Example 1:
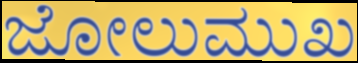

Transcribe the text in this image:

ಜೋಲುಮುಖ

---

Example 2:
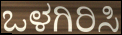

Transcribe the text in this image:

ಒಳಗಿರಿಸಿ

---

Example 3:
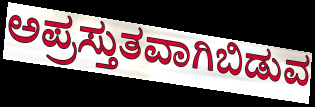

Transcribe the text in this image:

ಅಪ್ರಸ್ತುತವಾಗಿಬಿಡುವ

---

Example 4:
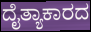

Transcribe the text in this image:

ದೈತ್ಯಾಕಾರದ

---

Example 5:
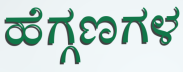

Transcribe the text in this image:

ಹೆಗ್ಗಣಗಳ